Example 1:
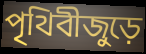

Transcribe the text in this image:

পৃথিবীজুড়ে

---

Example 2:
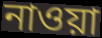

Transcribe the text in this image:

নাওয়া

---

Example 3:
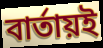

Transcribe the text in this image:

বার্তায়ই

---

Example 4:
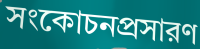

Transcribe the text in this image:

সংকোচনপ্রসারণ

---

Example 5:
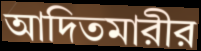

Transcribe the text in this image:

আদিতমারীর